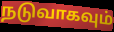
நடுவாகவும்